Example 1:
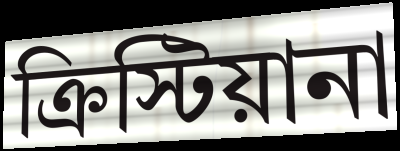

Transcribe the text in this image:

ক্রিস্টিয়ানা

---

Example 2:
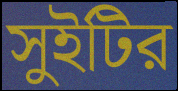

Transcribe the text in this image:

সুইটির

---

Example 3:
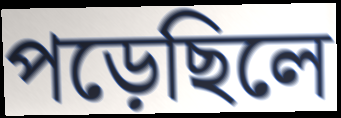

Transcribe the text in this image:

পড়েছিলে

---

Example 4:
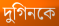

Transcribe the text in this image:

দুগিনকে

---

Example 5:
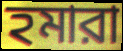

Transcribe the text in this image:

হমারা